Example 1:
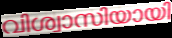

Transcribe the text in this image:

വിശ്വാസിയായി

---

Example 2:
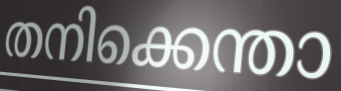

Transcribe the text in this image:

തനിക്കെന്താ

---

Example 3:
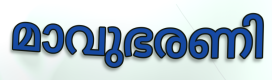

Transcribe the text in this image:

മാവുഭരണി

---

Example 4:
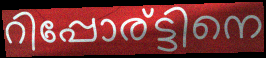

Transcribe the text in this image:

റിപ്പോര്ട്ടിനെ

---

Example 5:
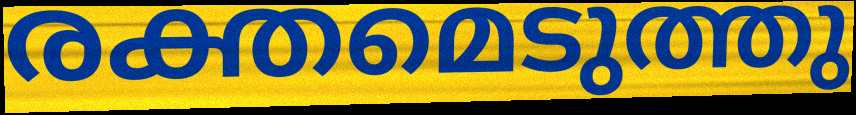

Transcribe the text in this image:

രക്തമെടുത്തു